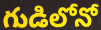
గుడిలోనో